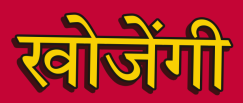
खोजेंगी